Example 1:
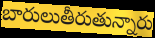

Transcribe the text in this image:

బారులుతీరుతున్నారు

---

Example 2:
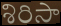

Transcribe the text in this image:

శిరిసా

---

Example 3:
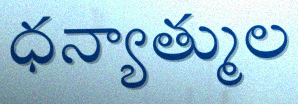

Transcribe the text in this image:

ధన్యాత్ముల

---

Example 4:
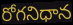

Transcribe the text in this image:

రోగనిధాన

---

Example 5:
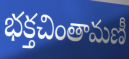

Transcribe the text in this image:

భక్తచింతామణీ